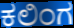
ಕಲಿಂಗ